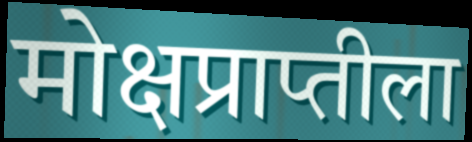
मोक्षप्राप्तीला